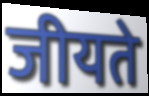
जीयते